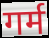
गर्म